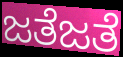
ಜತೆಜತೆ